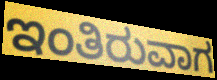
ಇಂತಿರುವಾಗ